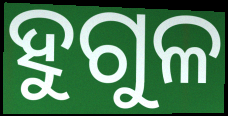
ହୁଗୁଳ